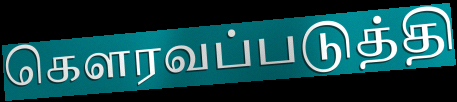
கெளரவப்படுத்தி